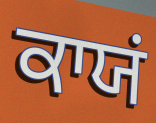
ਕਾਯਂ